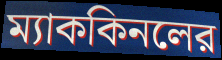
ম্যাককিনলের